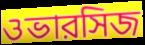
ওভারসিজ